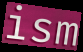
ism